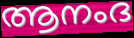
ആനംദ